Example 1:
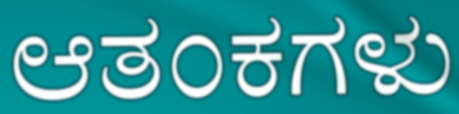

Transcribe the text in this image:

ಆತಂಕಗಳು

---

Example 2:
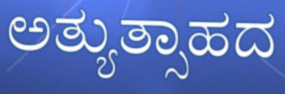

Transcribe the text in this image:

ಅತ್ಯುತ್ಸಾಹದ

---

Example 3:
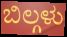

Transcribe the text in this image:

ಬಿಲ್ಗಳು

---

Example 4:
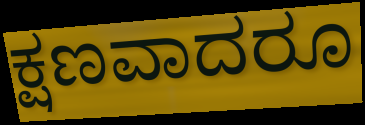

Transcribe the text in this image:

ಕ್ಷಣವಾದರೂ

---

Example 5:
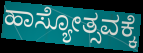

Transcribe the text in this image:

ಹಾಸ್ಯೋತ್ಸವಕ್ಕೆ